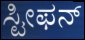
ಸ್ಟೀಫನ್